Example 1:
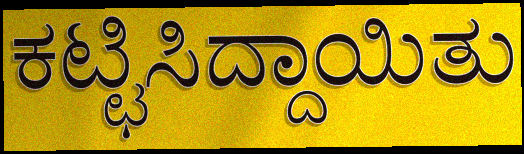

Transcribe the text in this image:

ಕಟ್ಟಿಸಿದ್ದಾಯಿತು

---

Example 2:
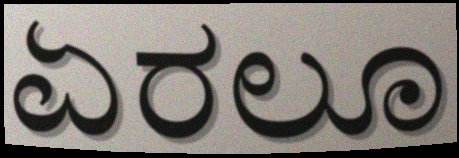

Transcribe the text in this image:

ಏರಲೂ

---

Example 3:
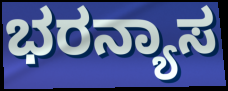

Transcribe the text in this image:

ಭರನ್ಯಾಸ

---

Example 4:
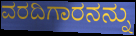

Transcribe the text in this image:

ವರದಿಗಾರನನ್ನು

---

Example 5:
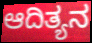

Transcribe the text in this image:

ಆದಿತ್ಯನ